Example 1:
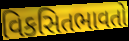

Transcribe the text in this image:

વિકસિતભાવતો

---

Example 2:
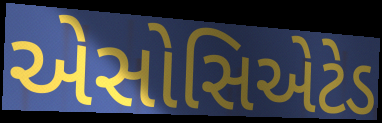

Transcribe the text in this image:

એસોસિએટેડ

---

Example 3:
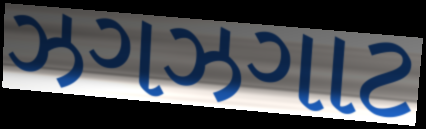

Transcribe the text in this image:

ઝગઝગાટ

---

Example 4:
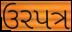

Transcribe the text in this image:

ઉરપત્ર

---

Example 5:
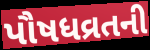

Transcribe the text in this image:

પૌષધવ્રતની